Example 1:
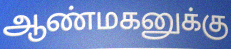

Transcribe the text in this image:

ஆண்மகனுக்கு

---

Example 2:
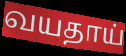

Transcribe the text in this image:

வயதாய்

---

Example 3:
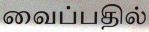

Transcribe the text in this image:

வைப்பதில்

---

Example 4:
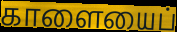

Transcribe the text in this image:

காளையைப்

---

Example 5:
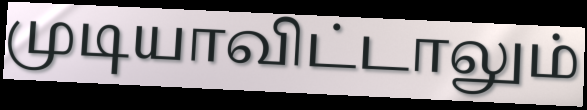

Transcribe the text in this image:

முடியாவிட்டாலும்